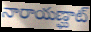
నారాయణ్ఘాట్